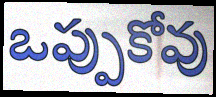
ఒప్పుకోవు